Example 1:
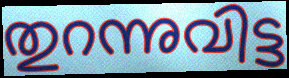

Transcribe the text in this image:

തുറന്നുവിട്ട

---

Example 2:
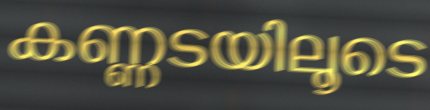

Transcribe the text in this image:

കണ്ണടയിലൂടെ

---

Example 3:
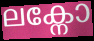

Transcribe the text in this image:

ലക്നോ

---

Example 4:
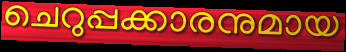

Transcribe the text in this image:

ചെറുപ്പക്കാരനുമായ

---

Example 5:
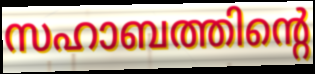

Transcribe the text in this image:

സഹാബത്തിന്റെ